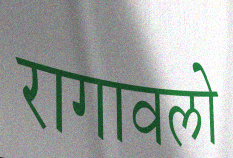
रागावलो